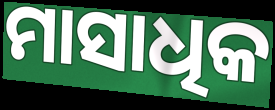
ମାସାଧିକ